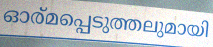
ഓര്മപ്പെടുത്തലുമായി